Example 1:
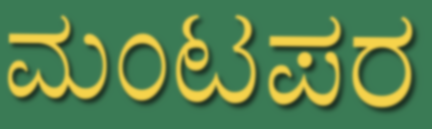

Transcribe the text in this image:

ಮಂಟಪರ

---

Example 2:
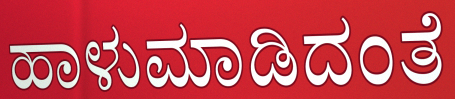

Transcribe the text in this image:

ಹಾಳುಮಾಡಿದಂತೆ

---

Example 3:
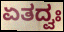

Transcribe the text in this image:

ಏತದ್ವಃ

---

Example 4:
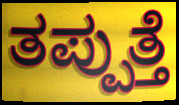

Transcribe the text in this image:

ತಪ್ಪುತ್ತೆ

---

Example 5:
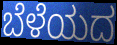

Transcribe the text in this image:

ಬೆಳೆಯದ